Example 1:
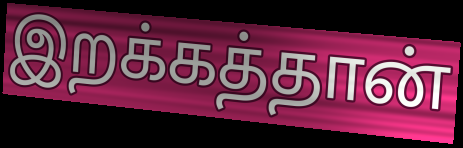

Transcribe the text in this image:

இறக்கத்தான்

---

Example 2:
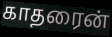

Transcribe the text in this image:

காதரைன்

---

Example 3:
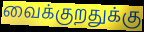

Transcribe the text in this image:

வைக்குறதுக்கு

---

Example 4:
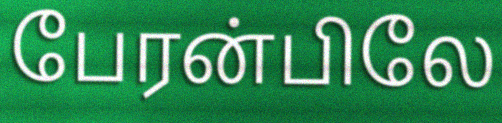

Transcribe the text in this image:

பேரன்பிலே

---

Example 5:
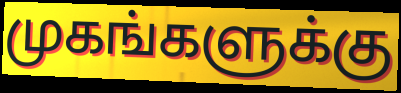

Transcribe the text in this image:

முகங்களுக்கு